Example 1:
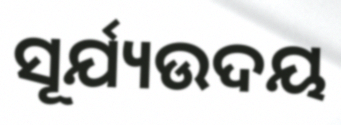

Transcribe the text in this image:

ସୂର୍ଯ୍ୟଉଦୟ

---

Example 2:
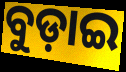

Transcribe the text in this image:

ବୁଡ଼ାଇ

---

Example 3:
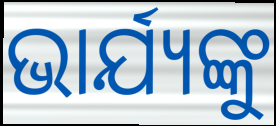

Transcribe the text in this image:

ଭାର୍ଯ୍ୟଙ୍କୁ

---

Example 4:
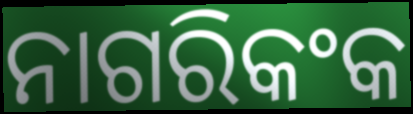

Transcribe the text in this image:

ନାଗରିକଂକ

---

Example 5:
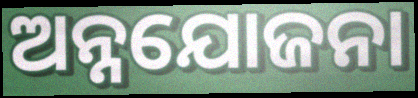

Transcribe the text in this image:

ଅନ୍ନଯୋଜନା